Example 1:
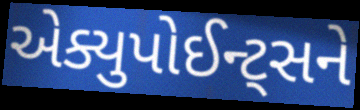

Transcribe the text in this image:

એક્યુપોઈન્ટ્સને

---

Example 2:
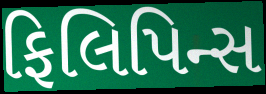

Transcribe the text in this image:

ફિલિપિન્સ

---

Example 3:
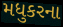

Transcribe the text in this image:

મધુકરના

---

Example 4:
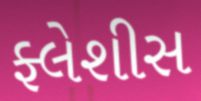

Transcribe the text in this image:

ફ્લેશીસ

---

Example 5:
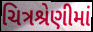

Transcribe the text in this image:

ચિત્રશ્રેણીમાં